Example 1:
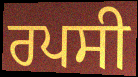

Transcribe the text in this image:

ਰਪਸੀ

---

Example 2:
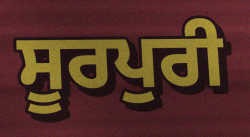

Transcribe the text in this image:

ਸੂਰਪੁਰੀ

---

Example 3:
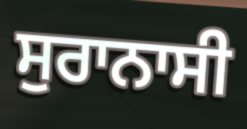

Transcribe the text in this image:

ਸੁਰਾਨਾਸੀ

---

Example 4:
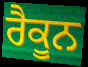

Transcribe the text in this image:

ਰੈਕੂਨ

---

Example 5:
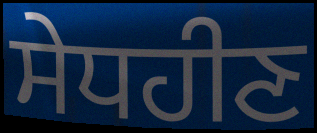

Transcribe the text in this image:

ਸੇਧਹੀਣ